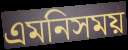
এমনিসময়